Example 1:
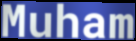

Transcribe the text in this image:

Muham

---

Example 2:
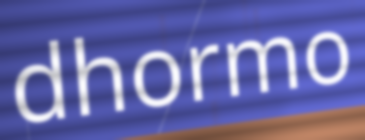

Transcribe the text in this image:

dhormo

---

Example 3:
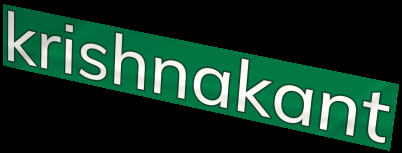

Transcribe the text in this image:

krishnakant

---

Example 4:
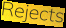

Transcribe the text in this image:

Rejects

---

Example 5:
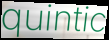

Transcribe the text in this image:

quintic